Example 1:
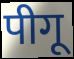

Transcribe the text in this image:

पीगू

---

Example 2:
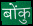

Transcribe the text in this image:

बोंकु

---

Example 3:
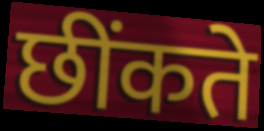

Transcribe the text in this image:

छींकते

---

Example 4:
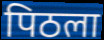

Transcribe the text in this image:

पिठला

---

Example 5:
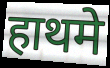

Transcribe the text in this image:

हाथमे